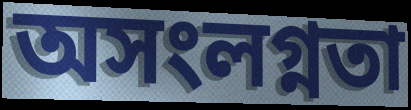
অসংলগ্নতা